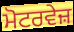
ਮੋਟਰਵੇਜ਼